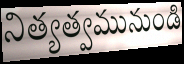
నిత్యత్వమునుండి